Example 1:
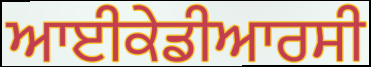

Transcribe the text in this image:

ਆਈਕੇਡੀਆਰਸੀ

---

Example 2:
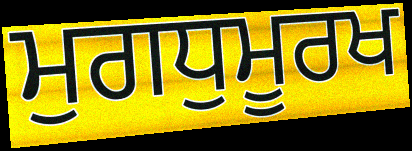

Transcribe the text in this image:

ਮੁਗਧੁਮੂਰਖ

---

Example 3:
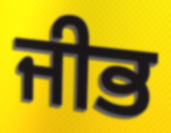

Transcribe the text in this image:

ਜੀਭ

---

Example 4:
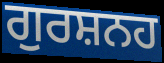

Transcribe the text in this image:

ਗੁਰਸ਼ਨਹ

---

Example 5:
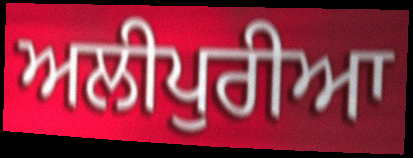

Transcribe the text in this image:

ਅਲੀਪੁਰੀਆ